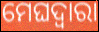
ମେଘଦ୍ୱାରା